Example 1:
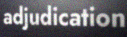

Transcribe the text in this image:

adjudication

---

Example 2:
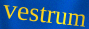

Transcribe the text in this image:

vestrum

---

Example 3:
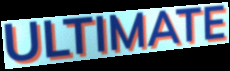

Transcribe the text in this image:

ULTIMATE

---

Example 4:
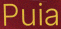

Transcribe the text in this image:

Puia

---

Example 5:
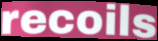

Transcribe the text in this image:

recoils